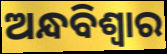
ଅନ୍ଧବିଶ୍ୱାର